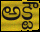
అక్టౌ